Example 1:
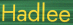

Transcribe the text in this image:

Hadlee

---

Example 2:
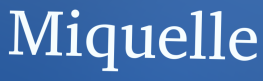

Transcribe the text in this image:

Miquelle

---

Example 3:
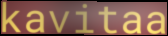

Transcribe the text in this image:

kavitaa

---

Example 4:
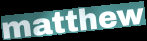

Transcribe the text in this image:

matthew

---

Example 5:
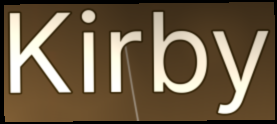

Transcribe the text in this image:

Kirby